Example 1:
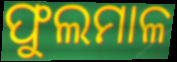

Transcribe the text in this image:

ଫୁଲମାଳ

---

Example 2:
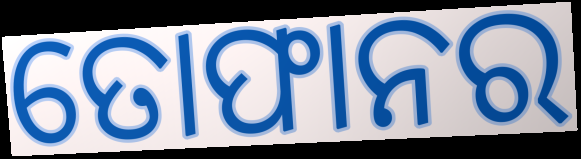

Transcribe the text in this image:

ତୋଫାନର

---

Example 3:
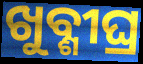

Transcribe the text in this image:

ଖୁବ୍ଶୀଘ୍ର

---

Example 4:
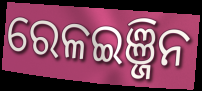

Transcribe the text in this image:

ରେଳଇଞ୍ଜିନ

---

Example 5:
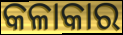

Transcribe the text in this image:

କଳାକାର